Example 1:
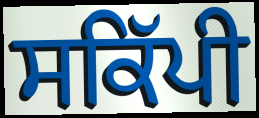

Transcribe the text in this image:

ਸਕਿੱਪੀ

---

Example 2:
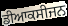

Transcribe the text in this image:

ਡੀਆਕਸੀਜਨ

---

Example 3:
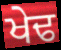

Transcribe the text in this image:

ਖੇਢ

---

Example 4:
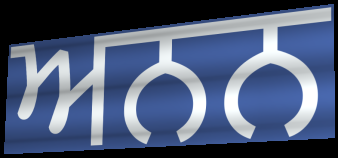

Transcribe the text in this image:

ਅਨਨ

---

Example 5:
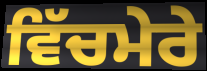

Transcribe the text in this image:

ਵਿੱਚਮੇਰੇ